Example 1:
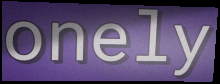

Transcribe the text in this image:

onely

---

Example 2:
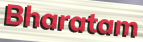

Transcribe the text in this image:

Bharatam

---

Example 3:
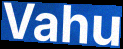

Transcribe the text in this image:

Vahu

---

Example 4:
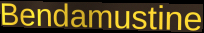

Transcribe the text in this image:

Bendamustine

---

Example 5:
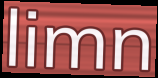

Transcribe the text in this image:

limn